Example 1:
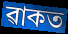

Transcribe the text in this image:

ৱাকত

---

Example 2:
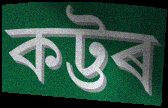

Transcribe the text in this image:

কট্টৰ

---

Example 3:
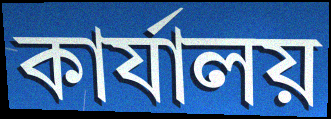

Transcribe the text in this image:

কাৰ্যালয়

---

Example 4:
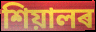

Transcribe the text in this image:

শিয়ালৰ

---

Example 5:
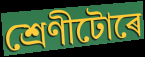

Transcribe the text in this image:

শ্ৰেণীটোৰে